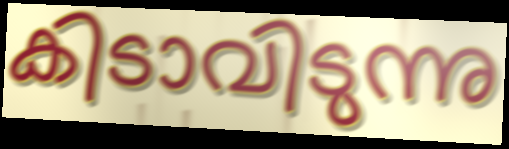
കിടാവിടുന്നു